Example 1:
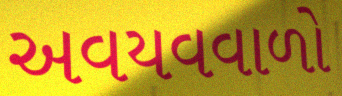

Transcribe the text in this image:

અવયવવાળો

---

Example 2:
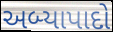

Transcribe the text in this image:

અબ્યાપાદો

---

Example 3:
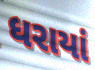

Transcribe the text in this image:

ધરાયાં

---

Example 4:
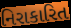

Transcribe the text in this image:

નિરાકારિત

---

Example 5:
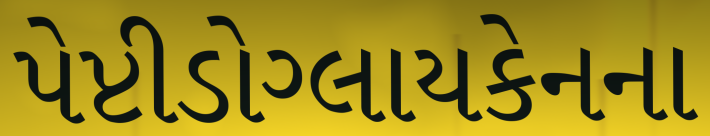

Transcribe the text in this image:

પેપ્ટીડોગ્લાયકેનના